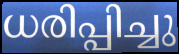
ധരിപ്പിച്ചു